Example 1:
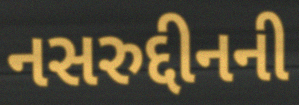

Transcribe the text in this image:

નસરુદ્દીનની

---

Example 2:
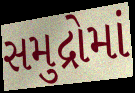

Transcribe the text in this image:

સમુદ્રોમાં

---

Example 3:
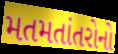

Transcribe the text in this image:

મતમતાંતરોનો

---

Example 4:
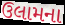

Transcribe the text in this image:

ઉલામના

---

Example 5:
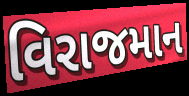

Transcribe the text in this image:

વિરાજમાન